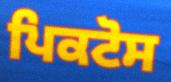
ਪਿਕਟੋਸ